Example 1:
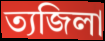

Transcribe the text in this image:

ত্যজিলা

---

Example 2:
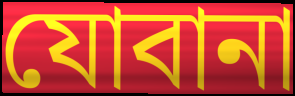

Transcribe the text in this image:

যোবানা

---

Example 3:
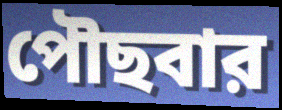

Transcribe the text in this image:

পৌছবার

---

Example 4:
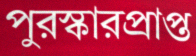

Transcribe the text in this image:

পুরস্কারপ্রাপ্ত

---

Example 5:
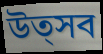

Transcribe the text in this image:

উত্সব